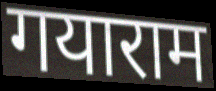
गयाराम